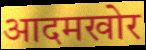
आदमखोर